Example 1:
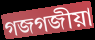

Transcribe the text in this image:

গজগজীয়া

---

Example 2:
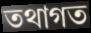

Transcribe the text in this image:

তথাগত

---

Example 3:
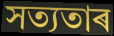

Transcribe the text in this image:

সত্যতাৰ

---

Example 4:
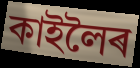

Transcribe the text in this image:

কাইলৈৰ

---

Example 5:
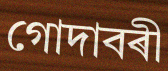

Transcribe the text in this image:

গোদাবৰী